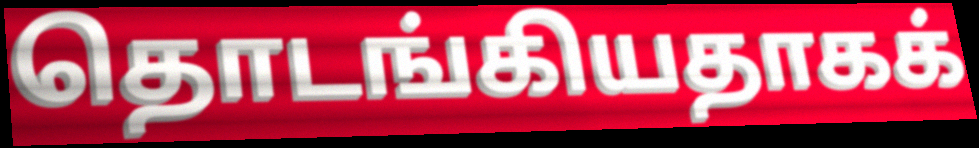
தொடங்கியதாகக்